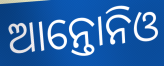
ଆନ୍ତୋନିଓ